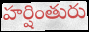
హర్షింతురు